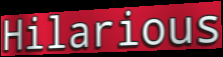
Hilarious